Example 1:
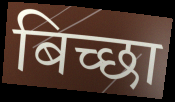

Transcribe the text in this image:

बिच्छा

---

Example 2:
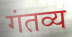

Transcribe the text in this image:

गंतव्य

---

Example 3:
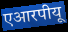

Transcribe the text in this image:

एआरपीयू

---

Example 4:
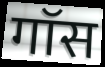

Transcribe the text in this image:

गॉस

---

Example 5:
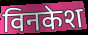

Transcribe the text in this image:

विनकेश